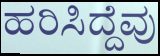
ಹರಿಸಿದ್ದೆವು